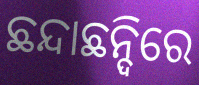
ଛନ୍ଦାଛନ୍ଦିରେ